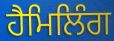
ਹੈਮਿਲਿੰਗ